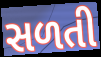
સળતી